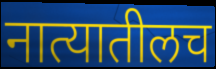
नात्यातीलच